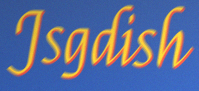
Jsgdish